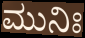
ಮುನಿಃ